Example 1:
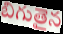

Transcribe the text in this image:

బిగుతైన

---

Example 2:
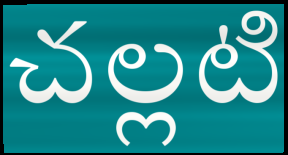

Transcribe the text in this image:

చల్లటి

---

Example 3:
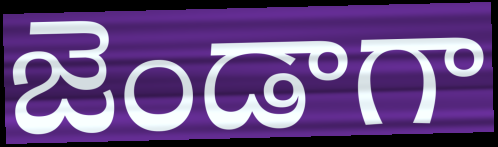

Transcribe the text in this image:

జెండాగా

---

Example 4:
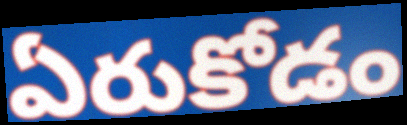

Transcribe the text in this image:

ఏరుకోడం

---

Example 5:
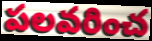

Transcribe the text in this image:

పలవరించ